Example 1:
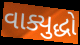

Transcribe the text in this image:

વાક્યુદ્ધો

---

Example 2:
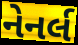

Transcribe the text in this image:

નેનર્લ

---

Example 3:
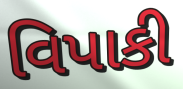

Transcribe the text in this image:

વિપાકી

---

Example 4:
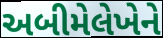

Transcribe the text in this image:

અબીમેલેખેને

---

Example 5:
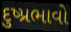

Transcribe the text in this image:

દુષ્પ્રભાવો